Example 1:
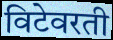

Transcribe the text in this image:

विटेवरती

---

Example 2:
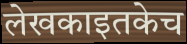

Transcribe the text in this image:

लेखकाइतकेच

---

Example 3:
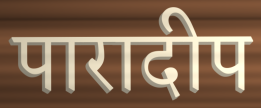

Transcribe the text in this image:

पारादीप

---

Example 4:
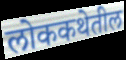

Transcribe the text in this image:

लोककथेतील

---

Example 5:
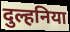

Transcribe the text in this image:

दुल्हनिया